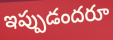
ఇప్పుడందరూ